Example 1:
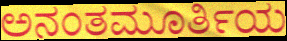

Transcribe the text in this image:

ಅನಂತಮೂರ್ತಿಯ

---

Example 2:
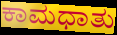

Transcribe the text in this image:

ಕಾಮಧಾತು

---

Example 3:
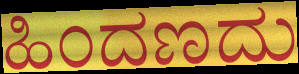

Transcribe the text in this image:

ಹಿಂದಣದು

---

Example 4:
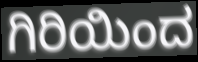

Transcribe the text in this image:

ಗಿರಿಯಿಂದ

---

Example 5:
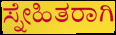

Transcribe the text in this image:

ಸ್ನೇಹಿತರಾಗಿ